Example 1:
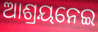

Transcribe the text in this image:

ଆଶ୍ରୟନେଇ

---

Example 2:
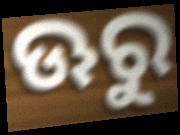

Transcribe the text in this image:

ଊରୁ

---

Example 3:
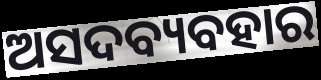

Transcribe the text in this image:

ଅସଦବ୍ୟବହାର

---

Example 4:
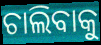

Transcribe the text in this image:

ଚାଲିବାକୁ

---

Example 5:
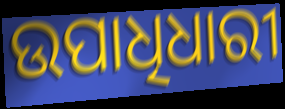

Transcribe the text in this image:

ଉପାଧିଧାରୀ